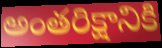
అంతరిక్షానికి